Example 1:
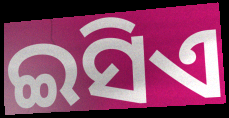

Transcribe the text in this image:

ଇସିଏ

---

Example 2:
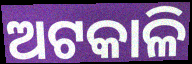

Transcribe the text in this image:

ଅଟକାଳି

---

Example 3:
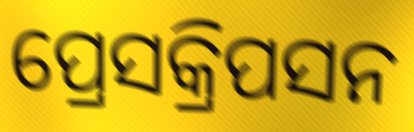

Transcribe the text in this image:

ପ୍ରେସକ୍ରିପସନ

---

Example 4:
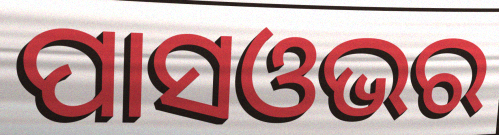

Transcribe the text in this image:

ପାସଓଭର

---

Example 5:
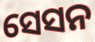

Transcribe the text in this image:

ସେସନ